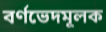
বর্ণভেদমূলক